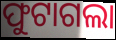
ଫୁଟାଗଲା